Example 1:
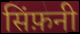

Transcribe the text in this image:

सिंफ़नी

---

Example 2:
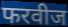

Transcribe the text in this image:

फरवीज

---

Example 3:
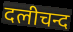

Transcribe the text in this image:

दलीचन्द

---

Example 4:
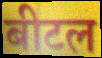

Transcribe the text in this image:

बीटल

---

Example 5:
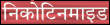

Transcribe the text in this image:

निकोटिनमाइड